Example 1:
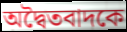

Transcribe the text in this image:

অদ্বৈতবাদকে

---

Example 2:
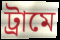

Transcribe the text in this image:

ট্রামে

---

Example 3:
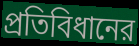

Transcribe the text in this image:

প্রতিবিধানের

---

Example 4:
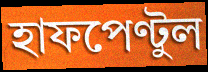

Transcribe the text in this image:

হাফপেণ্টুল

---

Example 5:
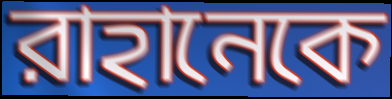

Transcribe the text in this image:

রাহানেকে